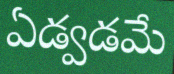
ఏడ్వడమే